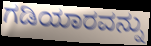
ಗಡಿಯಾರವನ್ನು